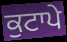
ਕੁਟਾਪੇ